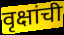
वृक्षांची